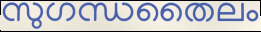
സുഗന്ധതൈലം